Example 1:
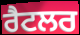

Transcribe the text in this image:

ਰੈਟਲਰ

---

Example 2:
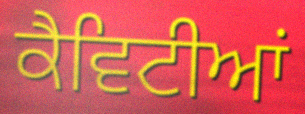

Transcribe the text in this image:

ਕੈਵਿਟੀਆਂ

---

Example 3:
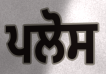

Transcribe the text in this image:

ਪਲੋਸ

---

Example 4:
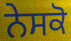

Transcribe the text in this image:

ਨੇਸਕੋ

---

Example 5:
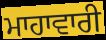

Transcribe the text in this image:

ਮਾਹਾਵਾਰੀ